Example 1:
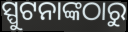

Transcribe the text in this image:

ସ୍ପୁଟନାଙ୍କଠାରୁ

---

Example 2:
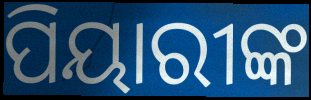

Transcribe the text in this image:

ପିୟାରୀଙ୍କ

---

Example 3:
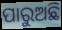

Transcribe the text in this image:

ପାରୁଅଛି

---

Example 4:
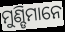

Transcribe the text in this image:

ମୁଣ୍ଡିମାନେ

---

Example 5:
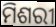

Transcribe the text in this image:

ମିଶରୀ